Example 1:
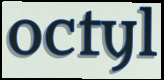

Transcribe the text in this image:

octyl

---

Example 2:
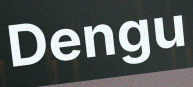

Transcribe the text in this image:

Dengu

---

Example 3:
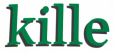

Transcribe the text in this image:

kille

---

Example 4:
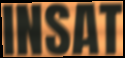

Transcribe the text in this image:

INSAT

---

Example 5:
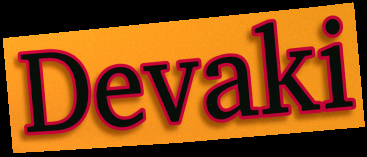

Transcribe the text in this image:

Devaki